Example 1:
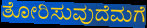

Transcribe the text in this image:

ತೋರಿಸುವುದೆಮಗೆ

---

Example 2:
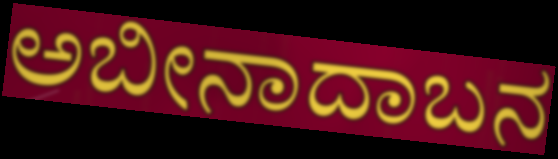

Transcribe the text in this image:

ಅಬೀನಾದಾಬನ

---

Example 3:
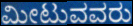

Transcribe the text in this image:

ಮೀಟುವವರು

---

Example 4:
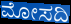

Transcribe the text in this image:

ಮೋಸದಿ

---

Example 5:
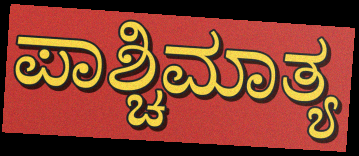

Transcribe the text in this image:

ಪಾಶ್ಚಿಮಾತ್ಯ